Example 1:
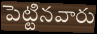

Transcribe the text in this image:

పెట్టినవారు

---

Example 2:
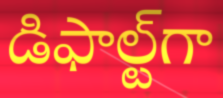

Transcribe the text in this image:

డిఫాల్ట్‌గా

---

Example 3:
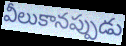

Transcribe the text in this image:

వీలుకానప్పుడు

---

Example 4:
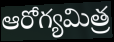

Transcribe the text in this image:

ఆరోగ్యమిత్ర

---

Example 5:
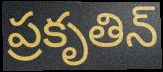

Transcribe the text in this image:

ప్రకృతిన్